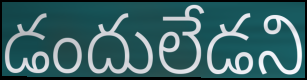
డందులేడని